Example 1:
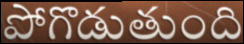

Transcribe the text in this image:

పోగొడుతుంది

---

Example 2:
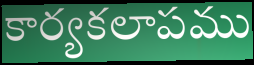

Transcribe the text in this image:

కార్యకలాపము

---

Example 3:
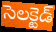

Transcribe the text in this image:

సెలక్టెడ్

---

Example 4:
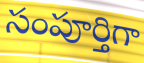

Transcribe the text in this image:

సంపూర్తిగా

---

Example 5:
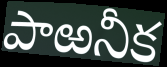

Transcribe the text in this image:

పాఱనీక